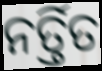
ନର୍ତ୍ତିତ